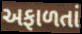
અફાળતાં